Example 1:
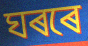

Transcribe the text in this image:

ঘৰৰে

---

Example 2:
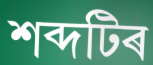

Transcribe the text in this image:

শব্দটিৰ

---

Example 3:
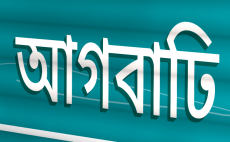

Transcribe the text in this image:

আগবাঢি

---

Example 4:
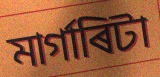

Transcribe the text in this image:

মাৰ্গাৰিটা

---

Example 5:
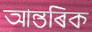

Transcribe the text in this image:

আন্তৰিক